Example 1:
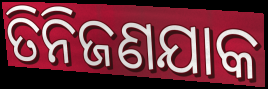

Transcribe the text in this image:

ତିନିଜଣଯାକ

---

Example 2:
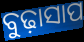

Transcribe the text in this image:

ବୁଢ଼ାସାପ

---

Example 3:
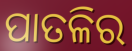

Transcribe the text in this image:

ପାତଳିର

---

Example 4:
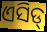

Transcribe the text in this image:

ଏସିଡ୍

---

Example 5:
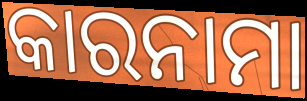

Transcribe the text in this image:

କାରନାମା